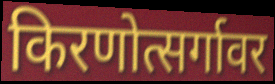
किरणोत्सर्गावर